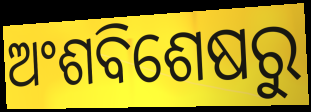
ଅଂଶବିଶେଷରୁ